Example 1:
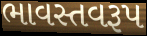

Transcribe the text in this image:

ભાવસ્તવરૂપ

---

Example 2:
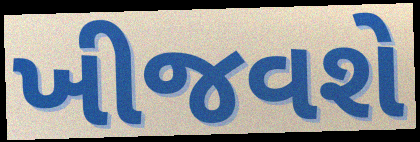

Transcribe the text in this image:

ખીજવશે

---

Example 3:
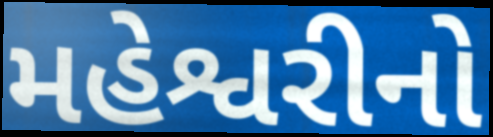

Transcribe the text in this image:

મહેશ્વરીનો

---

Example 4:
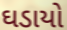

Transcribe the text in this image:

ઘડાયો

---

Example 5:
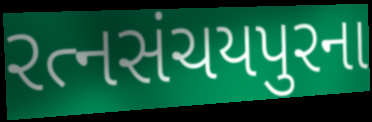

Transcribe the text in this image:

રત્નસંચયપુરના